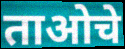
ताओचे